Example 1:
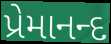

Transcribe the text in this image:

પ્રેમાનન્દ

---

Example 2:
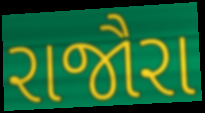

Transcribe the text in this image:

રાજૌરા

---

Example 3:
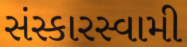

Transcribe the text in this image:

સંસ્કારસ્વામી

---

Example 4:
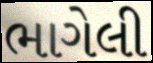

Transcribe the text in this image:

ભાગેલી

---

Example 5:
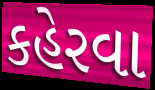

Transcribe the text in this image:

કહેરવા